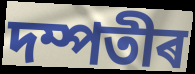
দম্পতীৰ